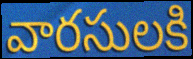
వారసులకి